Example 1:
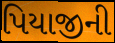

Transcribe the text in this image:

પિયાજીની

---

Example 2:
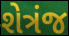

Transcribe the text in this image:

શેત્રંજ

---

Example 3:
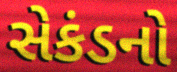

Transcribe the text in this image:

સેકંડનો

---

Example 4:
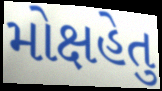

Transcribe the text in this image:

મોક્ષહેતુ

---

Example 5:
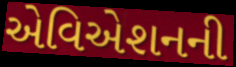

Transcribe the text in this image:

એવિએશનની